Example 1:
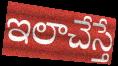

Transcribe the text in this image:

ఇలాచేస్తే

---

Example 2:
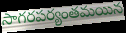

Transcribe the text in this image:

సాగరపర్యంతమయిన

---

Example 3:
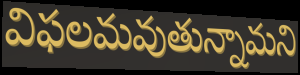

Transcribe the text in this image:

విఫలమవుతున్నామని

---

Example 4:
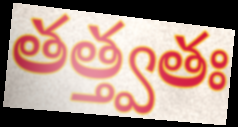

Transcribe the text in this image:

తత్త్వతః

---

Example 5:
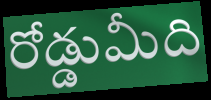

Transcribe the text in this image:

రోడ్డుమీది